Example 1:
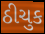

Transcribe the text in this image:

ઠીચુક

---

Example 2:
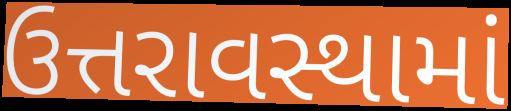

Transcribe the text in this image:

ઉત્તરાવસ્થામાં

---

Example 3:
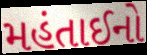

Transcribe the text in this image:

મહંતાઈનો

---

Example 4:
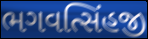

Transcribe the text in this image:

ભગવત્સિંહજી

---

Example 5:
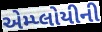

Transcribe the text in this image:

એમ્પ્લોયીની